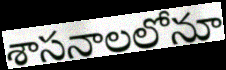
శాసనాలలోనూ